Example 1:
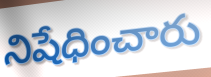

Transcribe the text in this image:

నిషేధించారు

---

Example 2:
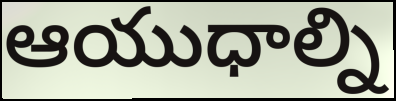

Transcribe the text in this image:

ఆయుధాల్ని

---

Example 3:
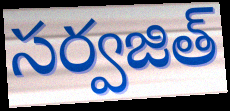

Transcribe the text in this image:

సర్వజిత్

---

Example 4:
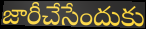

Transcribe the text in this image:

జారీచేసేందుకు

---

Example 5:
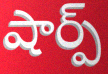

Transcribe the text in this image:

షార్ప్